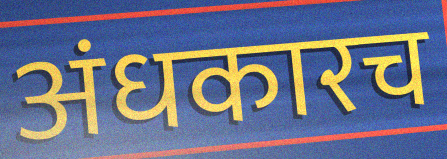
अंधकारच